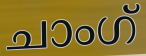
ചാംഗ്